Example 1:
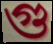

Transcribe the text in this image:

গু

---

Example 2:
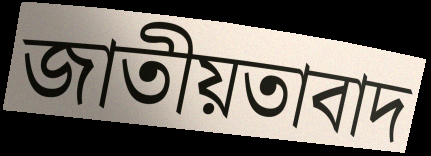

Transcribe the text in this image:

জাতীয়তাবাদ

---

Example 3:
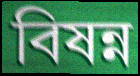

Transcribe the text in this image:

বিষন্ন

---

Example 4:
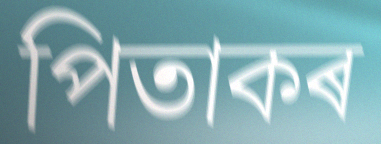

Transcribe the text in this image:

পিতাকৰ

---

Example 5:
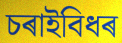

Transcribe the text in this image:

চৰাইবিধৰ